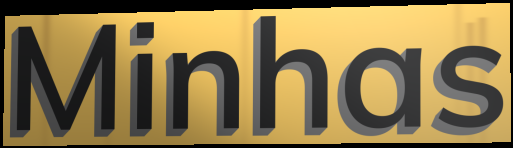
Minhas